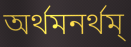
অর্থমনর্থম্